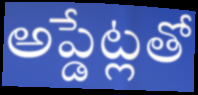
అప్డేట్లతో